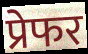
प्रेफर